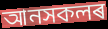
আনসকলৰ